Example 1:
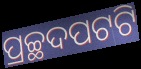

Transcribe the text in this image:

ପ୍ରଚ୍ଛଦପଟଟି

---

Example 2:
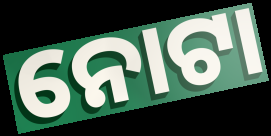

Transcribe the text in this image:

ନୋଟା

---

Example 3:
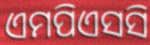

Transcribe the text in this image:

ଏମପିଏସସି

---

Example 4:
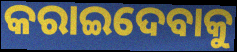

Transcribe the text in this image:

କରାଇଦେବାକୁ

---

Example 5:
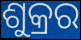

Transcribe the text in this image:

ଶୁକ୍ରର